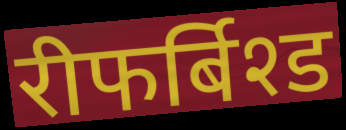
रीफर्बिश्ड